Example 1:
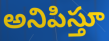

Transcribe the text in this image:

అనిపిస్తూ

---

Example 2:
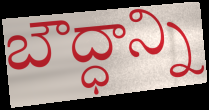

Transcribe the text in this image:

బౌద్ధాన్ని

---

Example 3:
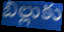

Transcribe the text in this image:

బిల్లుకు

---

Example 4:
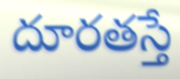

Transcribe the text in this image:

దూరతస్తే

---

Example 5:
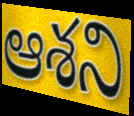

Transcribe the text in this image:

ఆశని